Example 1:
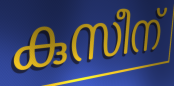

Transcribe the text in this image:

കുസീന്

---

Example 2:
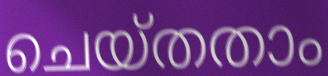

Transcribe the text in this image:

ചെയ്തതാം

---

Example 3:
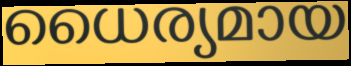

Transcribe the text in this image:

ധൈര്യമായ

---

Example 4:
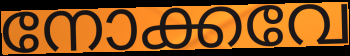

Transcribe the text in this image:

നോക്കവേ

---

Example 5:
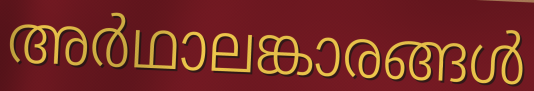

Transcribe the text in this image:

അർഥാലങ്കാരങ്ങൾ